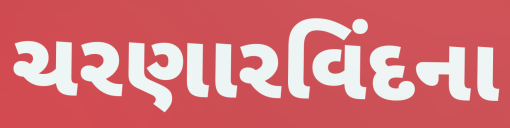
ચરણારવિંદના